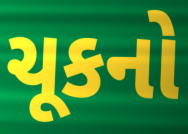
ચૂકનો